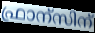
ഫ്രാന്സിന്